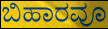
ಬಿಹಾರವೂ